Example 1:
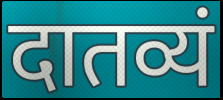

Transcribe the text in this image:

दातव्यं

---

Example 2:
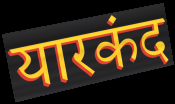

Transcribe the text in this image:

यारकंद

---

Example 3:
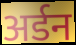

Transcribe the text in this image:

अर्डन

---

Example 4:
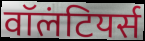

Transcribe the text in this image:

वॉलंटियर्स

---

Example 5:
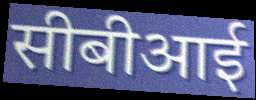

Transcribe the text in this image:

सीबीआई